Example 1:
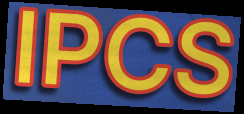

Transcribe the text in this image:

IPCS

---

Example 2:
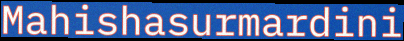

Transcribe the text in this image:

Mahishasurmardini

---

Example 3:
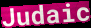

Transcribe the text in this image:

Judaic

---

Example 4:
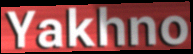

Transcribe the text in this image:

Yakhno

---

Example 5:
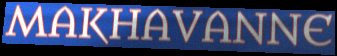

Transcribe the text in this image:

MAKHAVANNE